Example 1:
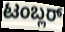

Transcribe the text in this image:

ಟಂಬ್ಲರ್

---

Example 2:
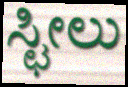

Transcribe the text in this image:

ಸ್ಟೀಲು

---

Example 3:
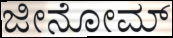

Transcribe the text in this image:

ಜೀನೋಮ್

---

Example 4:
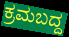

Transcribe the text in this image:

ಕ್ರಮಬದ್ದ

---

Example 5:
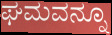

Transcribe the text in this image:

ಘಮವನ್ನೂ